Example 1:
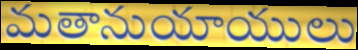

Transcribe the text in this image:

మతానుయాయులు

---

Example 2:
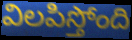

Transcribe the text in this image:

విలపిస్తోంది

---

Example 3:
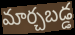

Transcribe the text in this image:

మార్చబడ్డ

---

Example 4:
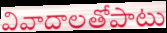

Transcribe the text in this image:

వివాదాలతోపాటు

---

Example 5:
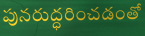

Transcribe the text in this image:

పునరుద్ధరించడంతో